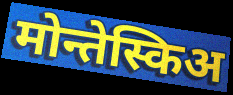
मोन्तेस्किअ